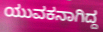
ಯುವಕನಾಗಿದ್ದ